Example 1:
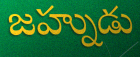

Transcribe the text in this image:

జహ్నుడు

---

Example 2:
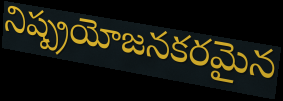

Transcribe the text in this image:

నిష్ప్రయోజనకరమైన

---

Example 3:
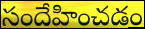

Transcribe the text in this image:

సందేహించడం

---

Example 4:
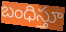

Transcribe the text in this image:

బంధిస్తూ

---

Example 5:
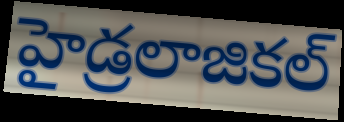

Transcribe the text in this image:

హైడ్రలాజికల్